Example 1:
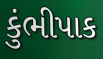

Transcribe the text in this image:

કુંભીપાક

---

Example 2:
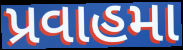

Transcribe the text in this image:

પ્રવાહમા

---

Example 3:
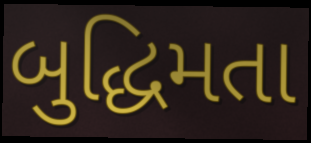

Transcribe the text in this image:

બુદ્ધિમતા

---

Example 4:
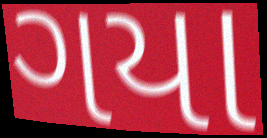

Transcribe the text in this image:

ગયા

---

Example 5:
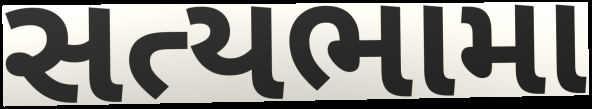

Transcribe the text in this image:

સત્યભામા